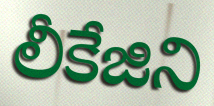
లీకేజిని